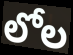
లోల